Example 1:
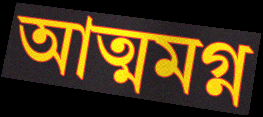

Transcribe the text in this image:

আত্মমগ্ন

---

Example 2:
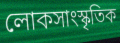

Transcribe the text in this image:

লোকসাংস্কৃতিক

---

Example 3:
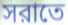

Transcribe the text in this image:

সরাতে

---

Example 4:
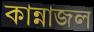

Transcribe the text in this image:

কান্নাজল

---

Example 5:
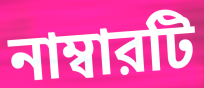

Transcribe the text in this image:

নাম্বারটি